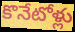
కొనేటోళ్లు